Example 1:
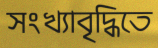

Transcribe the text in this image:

সংখ্যাবৃদ্ধিতে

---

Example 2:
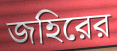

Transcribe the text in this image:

জহিরের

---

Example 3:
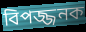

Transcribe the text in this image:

বিপজ্জনক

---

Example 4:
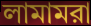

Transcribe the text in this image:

লামামরা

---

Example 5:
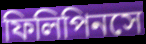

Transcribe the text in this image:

ফিলিপিনসে